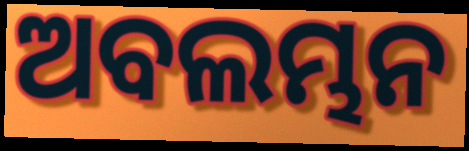
ଅବଲମ୍ଭନ